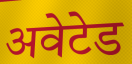
अवेटेड